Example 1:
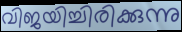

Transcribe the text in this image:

വിജയിച്ചിരിക്കുന്നു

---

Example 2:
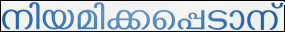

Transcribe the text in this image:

നിയമിക്കപ്പെടാന്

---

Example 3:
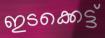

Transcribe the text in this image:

ഇടക്കെട്ട്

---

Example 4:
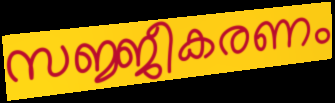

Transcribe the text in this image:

സജ്ജീകരണം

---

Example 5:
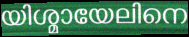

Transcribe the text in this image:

യിശ്മായേലിനെ